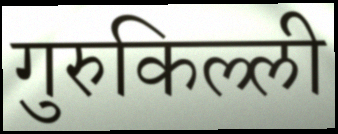
गुरुकिल्ली